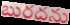
బురదను